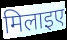
मिलाइए